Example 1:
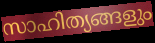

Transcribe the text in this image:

സാഹിത്യങ്ങളും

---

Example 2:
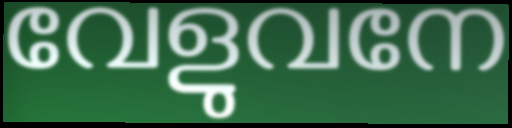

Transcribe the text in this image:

വേളുവനേ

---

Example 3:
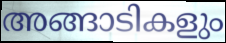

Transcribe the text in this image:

അങ്ങാടികളും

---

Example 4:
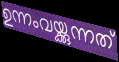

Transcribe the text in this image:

ഉന്നംവയ്ക്കുന്നത്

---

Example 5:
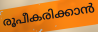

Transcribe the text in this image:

രൂപീകരിക്കാൻ